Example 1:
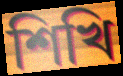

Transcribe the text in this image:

শিখি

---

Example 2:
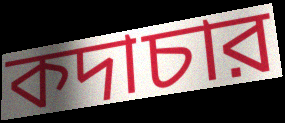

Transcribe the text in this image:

কদাচার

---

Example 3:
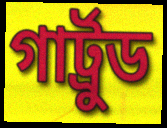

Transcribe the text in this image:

গার্ট্রুড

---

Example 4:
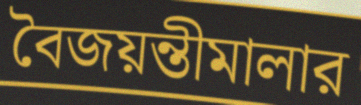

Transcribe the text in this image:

বৈজয়ন্তীমালার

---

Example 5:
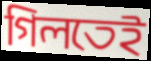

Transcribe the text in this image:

গিলতেই